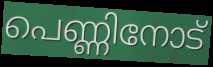
പെണ്ണിനോട്